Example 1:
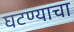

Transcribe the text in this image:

घटण्याचा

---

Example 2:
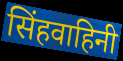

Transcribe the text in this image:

सिंहवाहिनी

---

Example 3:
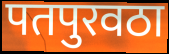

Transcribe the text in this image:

पतपुरवठा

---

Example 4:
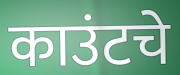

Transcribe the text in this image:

काउंटचे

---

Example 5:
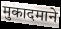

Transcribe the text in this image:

मुकादमाने